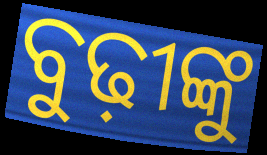
ବୁଢ଼ୀଙ୍କୁ